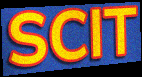
SCIT